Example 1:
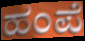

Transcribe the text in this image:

ಹಂಪೆ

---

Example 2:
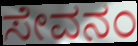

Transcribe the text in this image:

ಸೇವನಂ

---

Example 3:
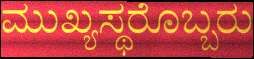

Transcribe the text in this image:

ಮುಖ್ಯಸ್ಥರೊಬ್ಬರು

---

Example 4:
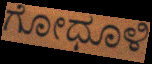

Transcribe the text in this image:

ಗೋಧೂಳಿ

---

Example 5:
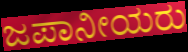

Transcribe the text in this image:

ಜಪಾನೀಯರು